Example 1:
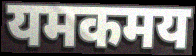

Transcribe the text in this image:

यमकमय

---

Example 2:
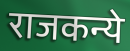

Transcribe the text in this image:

राजकन्ये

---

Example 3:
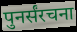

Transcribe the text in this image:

पुनर्संरचना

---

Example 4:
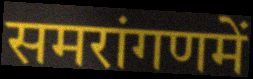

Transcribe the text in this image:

समरांगणमें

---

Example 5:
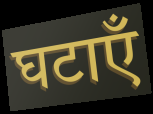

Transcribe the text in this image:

घटाएँ